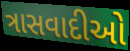
ત્રાસવાદીઓ